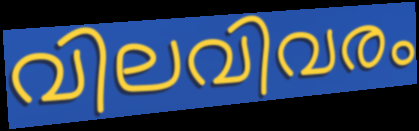
വിലവിവരം